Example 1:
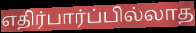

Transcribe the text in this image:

எதிர்பார்ப்பில்லாத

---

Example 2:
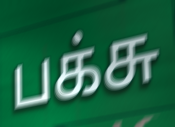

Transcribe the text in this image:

பக்சு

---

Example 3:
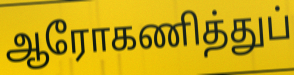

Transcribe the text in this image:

ஆரோகணித்துப்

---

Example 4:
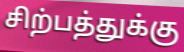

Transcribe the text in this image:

சிற்பத்துக்கு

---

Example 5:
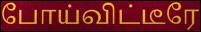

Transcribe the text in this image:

போய்விட்டீரே